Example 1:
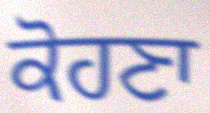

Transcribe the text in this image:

ਕੋਹਣਾ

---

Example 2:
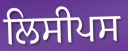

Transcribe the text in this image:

ਲਿਸੀਪਸ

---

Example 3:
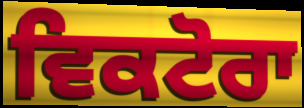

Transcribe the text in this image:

ਵਿਕਟੋਰਾ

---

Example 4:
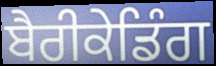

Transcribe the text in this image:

ਬੈਰੀਕੇਡਿੰਗ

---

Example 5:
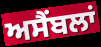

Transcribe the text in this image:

ਅਸੈਂਬਲਾਂ